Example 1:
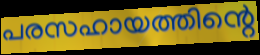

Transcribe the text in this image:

പരസഹായത്തിന്റെ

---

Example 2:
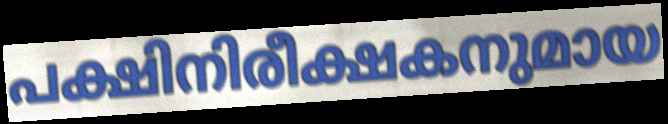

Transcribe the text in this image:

പക്ഷിനിരീക്ഷകനുമായ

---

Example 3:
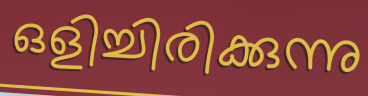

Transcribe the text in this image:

ഒളിച്ചിരിക്കുന്നു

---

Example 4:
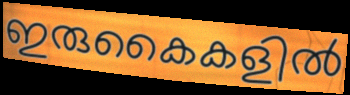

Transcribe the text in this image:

ഇരുകൈകളിൽ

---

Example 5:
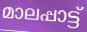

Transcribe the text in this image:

മാലപ്പാട്ട്